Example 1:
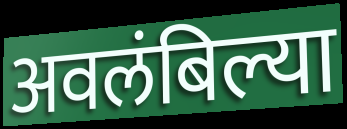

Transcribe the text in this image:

अवलंबिल्या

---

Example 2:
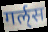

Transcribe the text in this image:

गर्ल्स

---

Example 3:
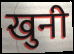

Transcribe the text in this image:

खुनी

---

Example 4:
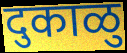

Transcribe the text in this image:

दुकाळु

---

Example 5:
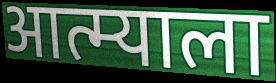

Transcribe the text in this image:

आत्म्याला